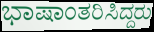
ಭಾಷಾಂತರಿಸಿದ್ದರು